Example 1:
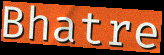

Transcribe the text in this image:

Bhatre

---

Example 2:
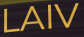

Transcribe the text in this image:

LAIV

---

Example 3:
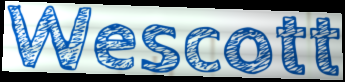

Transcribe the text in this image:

Wescott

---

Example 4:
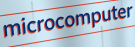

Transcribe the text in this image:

microcomputer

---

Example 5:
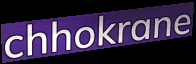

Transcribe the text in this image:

chhokrane